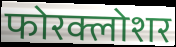
फोरक्लोशर